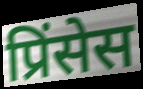
प्रिंसेस